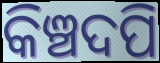
କିଞ୍ଚଦପି